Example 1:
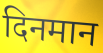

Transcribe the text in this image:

दिनमान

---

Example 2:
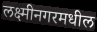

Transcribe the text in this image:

लक्ष्मीनगरमधील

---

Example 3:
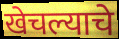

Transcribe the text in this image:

खेचल्याचे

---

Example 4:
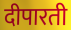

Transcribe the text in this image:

दीपारती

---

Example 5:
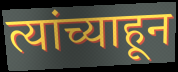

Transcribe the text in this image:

त्यांच्याहून